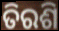
ତିରଶି